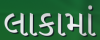
લાકામાં